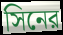
সিনের